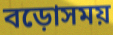
বড়োসময়